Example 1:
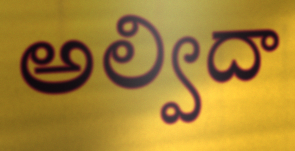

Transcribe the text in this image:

అల్విదా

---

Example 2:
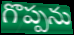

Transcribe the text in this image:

గొప్పను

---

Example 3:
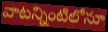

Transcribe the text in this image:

వాటన్నింటిలోనూ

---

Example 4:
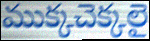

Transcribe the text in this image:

ముక్కచెక్కలై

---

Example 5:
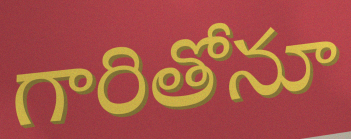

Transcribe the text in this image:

గారితోనూ